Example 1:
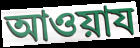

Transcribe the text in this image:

আওয়ায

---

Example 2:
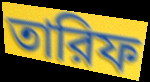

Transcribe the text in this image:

তারিফ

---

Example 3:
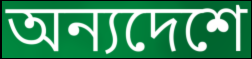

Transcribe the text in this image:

অন্যদেশে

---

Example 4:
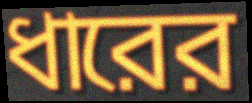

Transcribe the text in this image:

ধারের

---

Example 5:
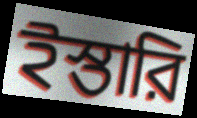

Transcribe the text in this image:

ইস্তারি